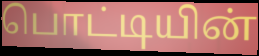
பொட்டியின்